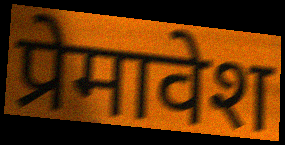
प्रेमावेश